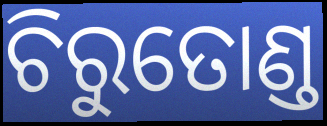
ଚିରୁତୋଣ୍ଡ